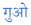
गुओ